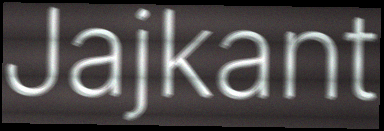
Jajkant